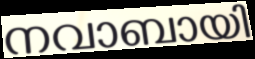
നവാബായി